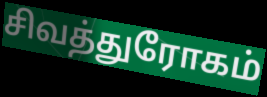
சிவத்துரோகம்